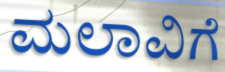
ಮಲಾವಿಗೆ